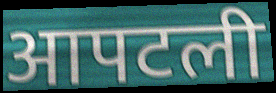
आपटली